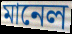
মানেল